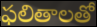
ఫలితాలతో